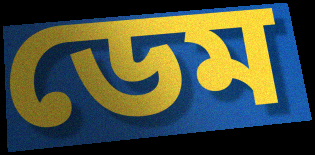
ডেম